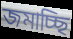
জমাচ্ছি